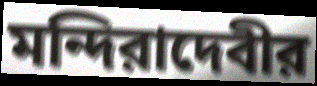
মন্দিরাদেবীর